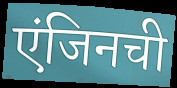
एंजिनची